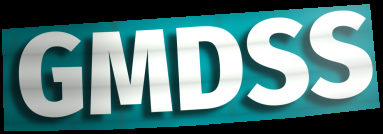
GMDSS